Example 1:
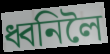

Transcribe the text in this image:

ধ্বনিলৈ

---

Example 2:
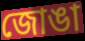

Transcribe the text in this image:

জোঙা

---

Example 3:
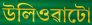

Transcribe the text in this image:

উলিওৱাটো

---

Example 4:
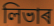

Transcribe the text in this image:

লিভাৰ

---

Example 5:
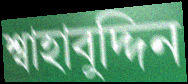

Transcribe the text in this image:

শ্বাহাবুদ্দিন